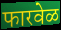
फारवेळ